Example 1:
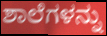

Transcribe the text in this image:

ಶಾಲೆಗಳನ್ನು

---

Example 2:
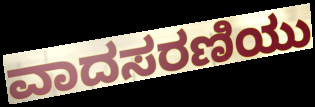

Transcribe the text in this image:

ವಾದಸರಣಿಯು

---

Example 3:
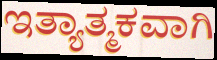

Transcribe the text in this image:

ಇತ್ಯಾತ್ಮಕವಾಗಿ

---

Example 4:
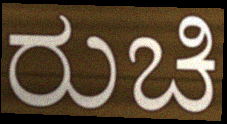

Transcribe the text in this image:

ರುಚಿ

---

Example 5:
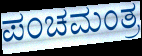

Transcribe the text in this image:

ಪಂಚಮಂತ್ರ